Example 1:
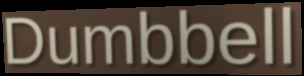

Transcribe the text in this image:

Dumbbell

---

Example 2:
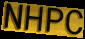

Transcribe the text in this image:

NHPC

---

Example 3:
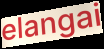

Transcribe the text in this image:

elangai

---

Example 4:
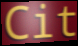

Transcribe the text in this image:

Cit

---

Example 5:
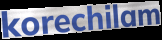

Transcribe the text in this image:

korechilam